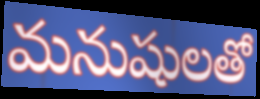
మనుషులతో